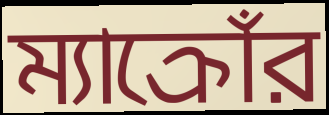
ম্যাক্রোঁর